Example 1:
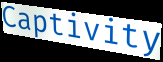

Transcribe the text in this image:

Captivity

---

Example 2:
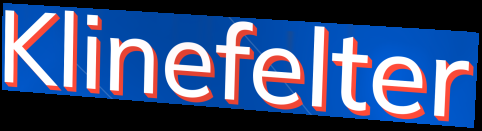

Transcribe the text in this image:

Klinefelter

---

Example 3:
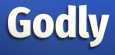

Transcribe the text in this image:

Godly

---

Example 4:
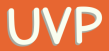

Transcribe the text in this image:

UVP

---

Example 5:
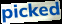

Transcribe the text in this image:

picked